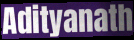
Adityanath